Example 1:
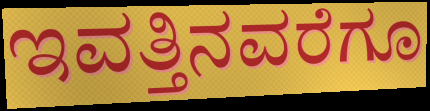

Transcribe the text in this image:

ಇವತ್ತಿನವರೆಗೂ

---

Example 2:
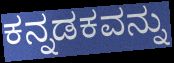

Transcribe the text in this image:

ಕನ್ನಡಕವನ್ನು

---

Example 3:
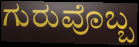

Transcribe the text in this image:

ಗುರುವೊಬ್ಬ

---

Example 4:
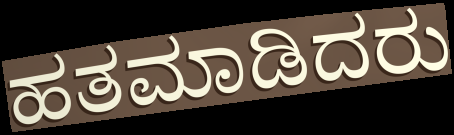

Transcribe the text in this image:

ಹತಮಾಡಿದರು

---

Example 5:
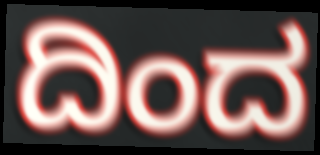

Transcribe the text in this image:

ದಿಂದ